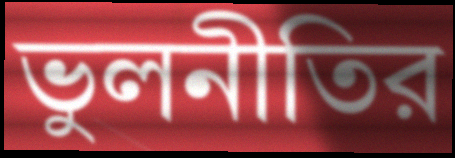
ভুলনীতির